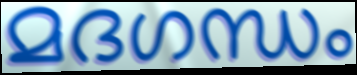
മദഗന്ധം